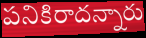
పనికిరాదన్నారు